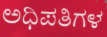
ಅಧಿಪತಿಗಳ